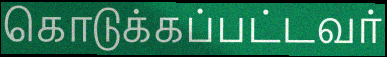
கொடுக்கப்பட்டவர்